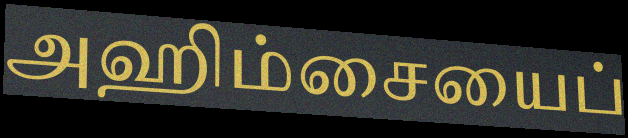
அஹிம்சையைப்